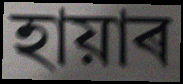
হায়াৰ